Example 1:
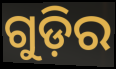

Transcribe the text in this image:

ଗୁଡ଼ିର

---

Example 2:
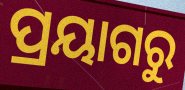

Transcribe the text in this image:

ପ୍ରୟାଗରୁ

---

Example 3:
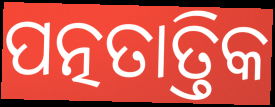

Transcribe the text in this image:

ପତ୍ନତାତ୍ତିକ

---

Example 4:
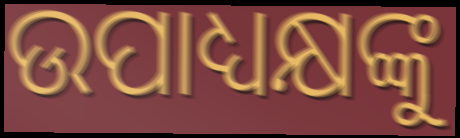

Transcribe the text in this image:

ଉପାଧ୍ୟକ୍ଷଙ୍କୁ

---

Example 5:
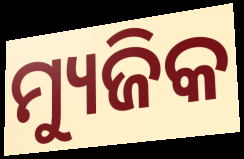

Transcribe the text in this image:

ମ୍ୟୁଜିକ